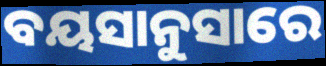
ବୟସାନୁସାରେ